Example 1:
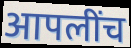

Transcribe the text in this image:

आपलींच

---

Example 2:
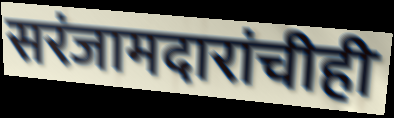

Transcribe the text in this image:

सरंजामदारांचीही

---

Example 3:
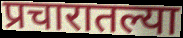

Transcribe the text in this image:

प्रचारातल्या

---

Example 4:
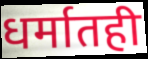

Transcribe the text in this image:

धर्मातही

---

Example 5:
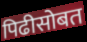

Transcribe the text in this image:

पिढीसोबत